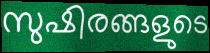
സുഷിരങ്ങളുടെ